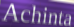
Achinta